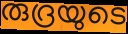
രുദ്രയുടെ